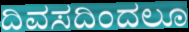
ದಿವಸದಿಂದಲೂ